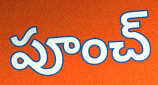
పూంచ్